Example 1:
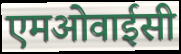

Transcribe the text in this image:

एमओवाईसी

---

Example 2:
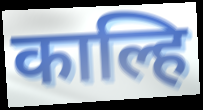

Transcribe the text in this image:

काल्हि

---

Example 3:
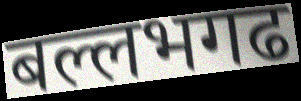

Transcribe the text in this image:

बल्लभगढ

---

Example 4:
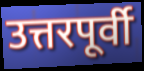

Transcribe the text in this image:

उत्तरपूर्वी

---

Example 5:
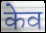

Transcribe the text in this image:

केव